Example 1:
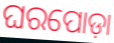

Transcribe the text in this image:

ଘରପୋଡ଼ା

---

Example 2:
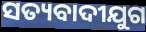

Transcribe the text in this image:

ସତ୍ୟବାଦୀଯୁଗ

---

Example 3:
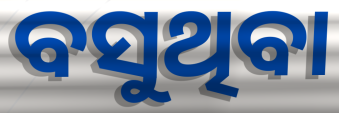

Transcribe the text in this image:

ବସୁଥିବା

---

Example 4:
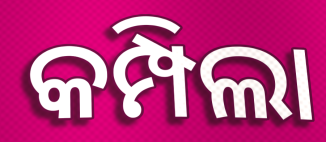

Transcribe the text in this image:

କମ୍ପିଲା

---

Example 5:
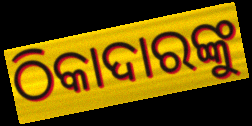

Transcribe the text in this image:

ଠିକାଦାରଙ୍କୁ